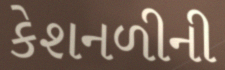
કેશનળીની